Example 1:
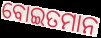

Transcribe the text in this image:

ବୋଇତମାନ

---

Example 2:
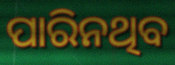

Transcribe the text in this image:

ପାରିନଥିବ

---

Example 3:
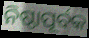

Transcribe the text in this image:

ନିଷ୍ଠାପୂର୍ବକ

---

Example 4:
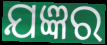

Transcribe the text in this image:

ଯଜ୍ଞର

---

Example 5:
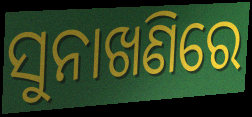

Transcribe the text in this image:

ସୁନାଖଣିରେ